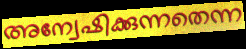
അന്വേഷിക്കുന്നതെന്ന